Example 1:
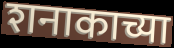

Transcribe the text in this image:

शनाकाच्या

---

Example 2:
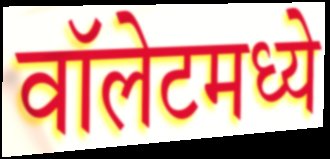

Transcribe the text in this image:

वॉलेटमध्ये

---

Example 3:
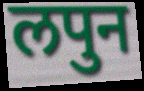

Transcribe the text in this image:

लपुन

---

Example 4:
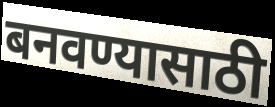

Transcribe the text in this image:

बनवण्यासाठी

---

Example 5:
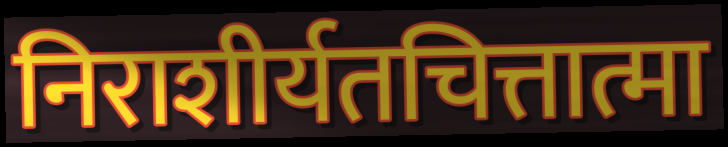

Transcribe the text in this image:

निराशीर्यतचित्तात्मा